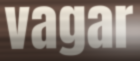
vagar